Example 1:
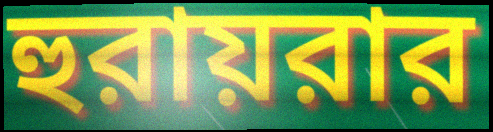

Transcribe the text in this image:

হুরায়রার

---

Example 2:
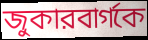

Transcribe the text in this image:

জুকারবার্গকে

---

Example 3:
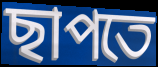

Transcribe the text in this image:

ছাপতে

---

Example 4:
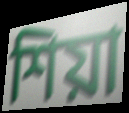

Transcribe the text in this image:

শিয়া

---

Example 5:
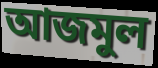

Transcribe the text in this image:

আজমুল